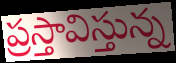
ప్రస్తావిస్తున్న